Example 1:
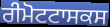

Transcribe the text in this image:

ਰੀਮੋਟਟਾਸਕਸ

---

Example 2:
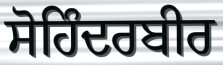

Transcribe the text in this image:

ਸੋਹਿੰਦਰਬੀਰ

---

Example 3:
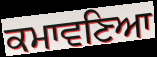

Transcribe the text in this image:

ਕਮਾਵਣਿਆ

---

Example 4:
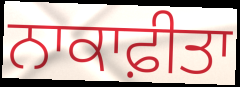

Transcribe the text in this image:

ਨਾਕਾਫ਼ੀਤਾ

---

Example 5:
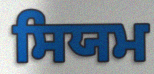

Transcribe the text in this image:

ਸਿਯਮ